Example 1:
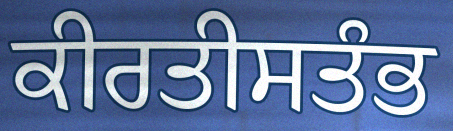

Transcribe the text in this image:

ਕੀਰਤੀਸਤੰਭ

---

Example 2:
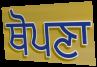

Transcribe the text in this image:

ਥੋਪਣਾ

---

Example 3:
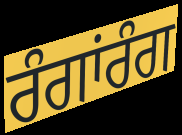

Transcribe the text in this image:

ਰੰਗਾਂਰੰਗ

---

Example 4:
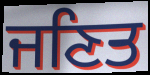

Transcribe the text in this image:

ਜਣਿਤ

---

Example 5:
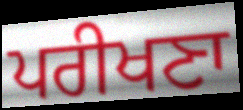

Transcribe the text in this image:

ਪਰੀਖਣਾ